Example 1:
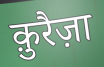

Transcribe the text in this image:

क़ुरैज़ा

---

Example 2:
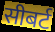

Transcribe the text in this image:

सीबर्ट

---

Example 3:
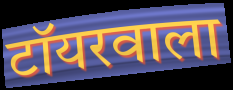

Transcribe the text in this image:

टॉयरवाला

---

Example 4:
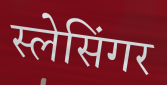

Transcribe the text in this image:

स्लेसिंगर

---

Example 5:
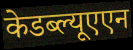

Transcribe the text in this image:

केडब्ल्यूएएन